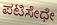
ಪಟಿಸೇಧೇ